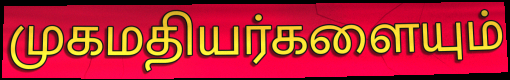
முகமதியர்களையும்